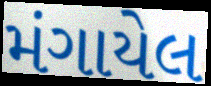
મંગાયેલ